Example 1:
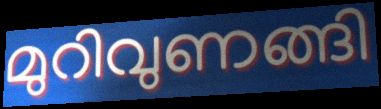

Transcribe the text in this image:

മുറിവുണങ്ങി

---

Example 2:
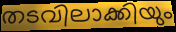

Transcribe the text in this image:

തടവിലാക്കിയും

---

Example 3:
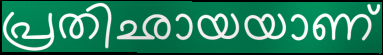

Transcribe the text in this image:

പ്രതിഛായയാണ്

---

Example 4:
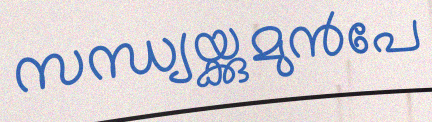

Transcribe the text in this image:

സന്ധ്യയ്ക്കുമുൻപേ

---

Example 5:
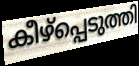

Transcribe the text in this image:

കീഴ്പ്പെടുത്തി